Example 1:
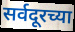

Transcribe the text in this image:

सर्वदूरच्या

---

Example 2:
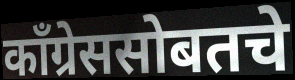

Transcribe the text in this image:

काँग्रेससोबतचे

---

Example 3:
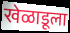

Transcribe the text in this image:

खेळाडूला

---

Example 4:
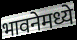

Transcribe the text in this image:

भावनेमध्ये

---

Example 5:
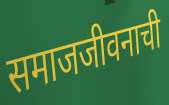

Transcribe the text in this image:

समाजजीवनाची